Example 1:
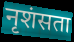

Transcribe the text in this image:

नृशंसता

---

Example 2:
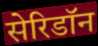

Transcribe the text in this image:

सेरिडॉन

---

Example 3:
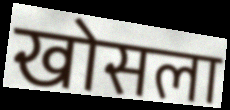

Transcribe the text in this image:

खोसला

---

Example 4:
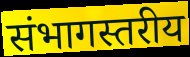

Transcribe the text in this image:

संभागस्तरीय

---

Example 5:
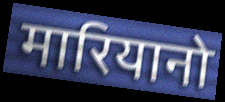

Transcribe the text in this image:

मारियानो